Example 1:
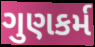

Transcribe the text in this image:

ગુણકર્મ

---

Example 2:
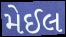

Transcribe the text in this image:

મેઈલ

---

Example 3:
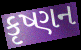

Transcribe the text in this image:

કૃષ્ણન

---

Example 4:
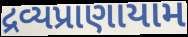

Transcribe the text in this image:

દ્રવ્યપ્રાણાયામ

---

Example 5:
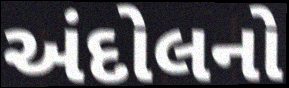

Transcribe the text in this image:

અંદોલનો